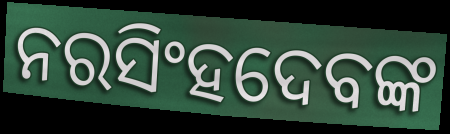
ନରସିଂହଦେବଙ୍କ